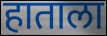
हाताला